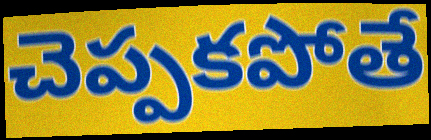
చెప్పకపోతే